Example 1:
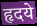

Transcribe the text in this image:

हृदये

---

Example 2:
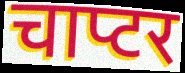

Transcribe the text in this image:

चाप्टर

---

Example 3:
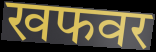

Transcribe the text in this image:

खफवर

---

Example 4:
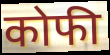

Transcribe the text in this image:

कोफी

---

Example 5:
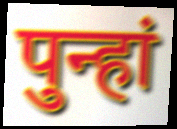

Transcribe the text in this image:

पुन्हां